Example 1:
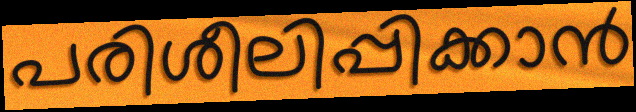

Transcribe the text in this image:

പരിശീലിപ്പിക്കാൻ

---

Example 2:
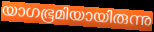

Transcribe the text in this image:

യാഗഭൂമിയായിരുന്നു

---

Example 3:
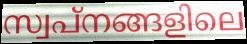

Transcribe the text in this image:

സ്വപ്നങ്ങളിലെ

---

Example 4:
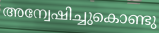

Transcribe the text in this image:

അന്വേഷിച്ചുകൊണ്ടു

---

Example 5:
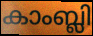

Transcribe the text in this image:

കാംബ്ലി